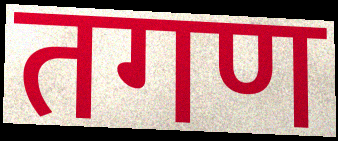
तगण